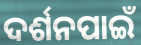
ଦର୍ଶନପାଇଁ